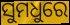
ସୁମଧୁରେ